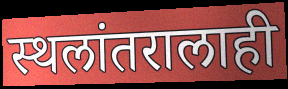
स्थलांतरालाही